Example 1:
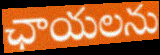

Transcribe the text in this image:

ఛాయలను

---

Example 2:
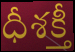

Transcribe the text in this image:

ధీశక్తీ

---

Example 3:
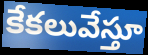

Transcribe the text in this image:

కేకలువేస్తూ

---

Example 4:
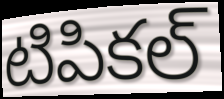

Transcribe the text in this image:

టిపికల్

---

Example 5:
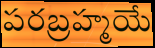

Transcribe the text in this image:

పరబ్రహ్మయే